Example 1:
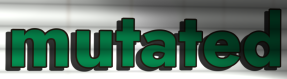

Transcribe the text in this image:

mutated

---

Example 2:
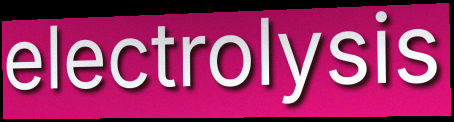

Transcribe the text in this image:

electrolysis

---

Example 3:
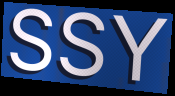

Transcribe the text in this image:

SSY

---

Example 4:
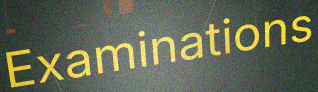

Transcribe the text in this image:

Examinations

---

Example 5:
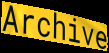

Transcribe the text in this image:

Archive